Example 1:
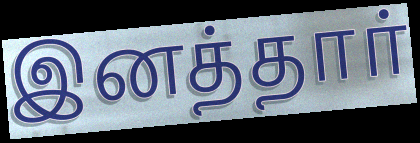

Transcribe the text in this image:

இனத்தார்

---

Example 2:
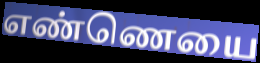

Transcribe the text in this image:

எண்ணெயை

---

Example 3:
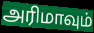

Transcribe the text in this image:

அரிமாவும்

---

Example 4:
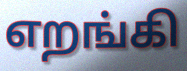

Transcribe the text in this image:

எறங்கி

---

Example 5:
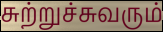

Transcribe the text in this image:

சுற்றுச்சுவரும்